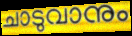
ചാടുവാനും